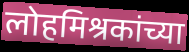
लोहमिश्रकांच्या